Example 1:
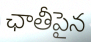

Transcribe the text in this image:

ఛాతీపైన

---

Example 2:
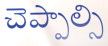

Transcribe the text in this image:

చెప్పాల్సి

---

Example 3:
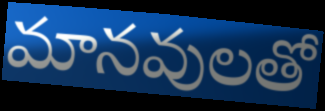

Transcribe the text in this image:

మానవులతో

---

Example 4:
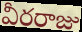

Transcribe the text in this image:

వీరరాజు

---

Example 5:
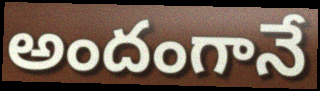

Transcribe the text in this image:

అందంగానే